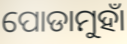
ପୋଡାମୁହାଁ